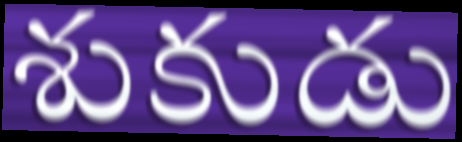
శుకుడు